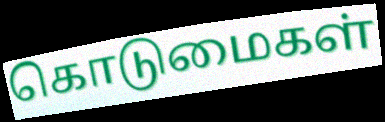
கொடுமைகள்